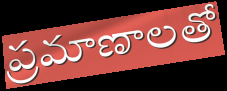
ప్రమాణాలతో